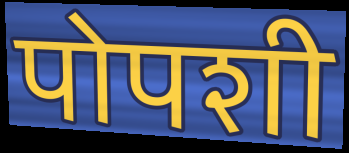
पोपशी